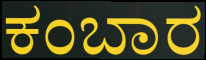
ಕಂಬಾರ